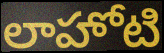
లాహోటి